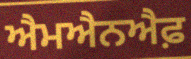
ਐਮਐਨਐਫ਼